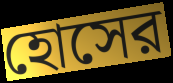
হোসের